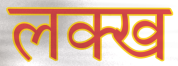
लक्ख